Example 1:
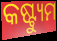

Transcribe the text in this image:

କଷ୍ଟ୍ୟୁମ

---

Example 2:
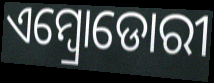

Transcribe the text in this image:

ଏମ୍ବ୍ରୋଡୋରୀ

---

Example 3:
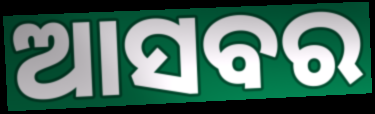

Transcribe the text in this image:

ଆସବର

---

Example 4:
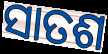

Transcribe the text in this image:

ସାତଶ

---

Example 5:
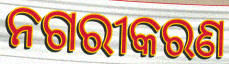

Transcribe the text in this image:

ନଗରୀକରଣ